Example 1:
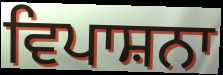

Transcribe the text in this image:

ਵਿਪਾਸ਼ਨਾ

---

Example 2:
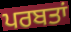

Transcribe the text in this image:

ਪਰਬਤਾਂ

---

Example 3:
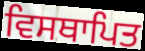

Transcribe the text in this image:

ਵਿਸਥਾਪਿਤ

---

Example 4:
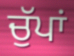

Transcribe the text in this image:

ਚੁੱਪਾਂ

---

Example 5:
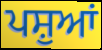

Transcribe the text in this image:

ਪਸ਼ੁਆਂ